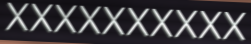
XXXXXXXXXX